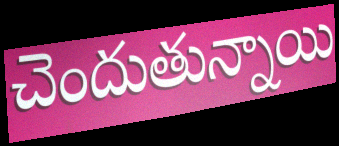
చెందుతున్నాయి